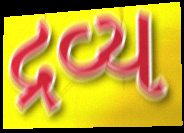
દ્રવ્ય